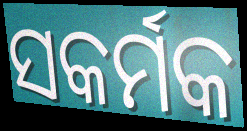
ସକର୍ମକ